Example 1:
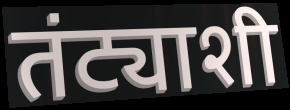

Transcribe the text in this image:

तंट्याशी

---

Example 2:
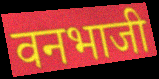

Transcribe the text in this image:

वनभाजी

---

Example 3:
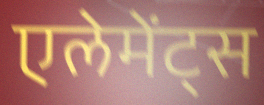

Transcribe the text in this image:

एलेमेंट्स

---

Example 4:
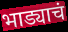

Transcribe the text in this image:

भाड्याचं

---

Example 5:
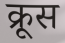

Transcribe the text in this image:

क्रूस